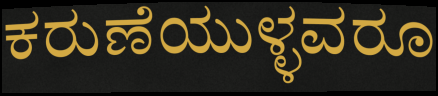
ಕರುಣೆಯುಳ್ಳವರೂ